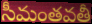
సీమంతవతీ